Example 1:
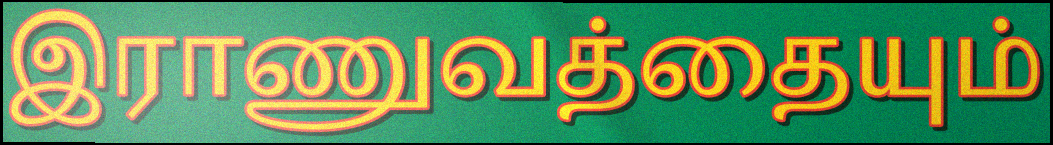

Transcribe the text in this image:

இராணுவத்தையும்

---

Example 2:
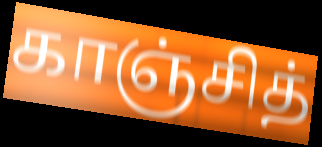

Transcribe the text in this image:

காஞ்சித்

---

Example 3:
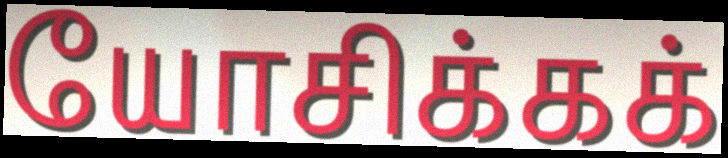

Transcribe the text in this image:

யோசிக்கக்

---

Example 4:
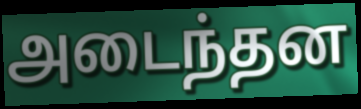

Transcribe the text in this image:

அடைந்தன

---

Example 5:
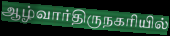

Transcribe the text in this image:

ஆழ்வார்திருநகரியில்